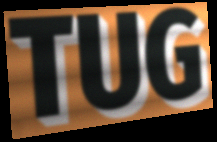
TUG